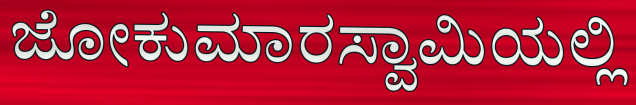
ಜೋಕುಮಾರಸ್ವಾಮಿಯಲ್ಲಿ